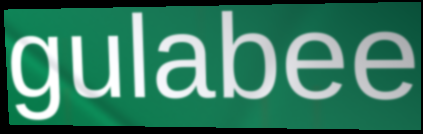
gulabee